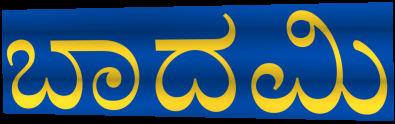
ಬಾದಮಿ